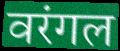
वरंगल